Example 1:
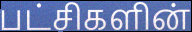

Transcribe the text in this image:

பட்சிகளின்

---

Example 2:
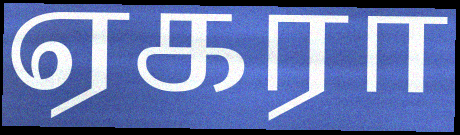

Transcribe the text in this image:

ஏகரா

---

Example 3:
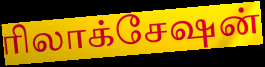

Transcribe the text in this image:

ரிலாக்சேஷன்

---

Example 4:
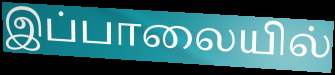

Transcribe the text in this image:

இப்பாலையில்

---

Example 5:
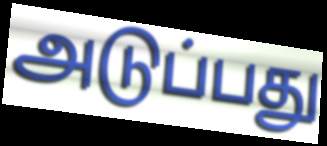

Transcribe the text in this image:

அடுப்பது